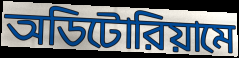
অডিটোরিয়ামে